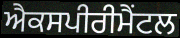
ਐਕਸਪੀਰੀਮੈਂਟਲ